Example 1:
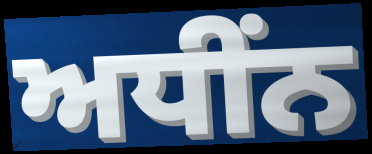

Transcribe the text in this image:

ਅਧੀਂਨ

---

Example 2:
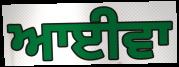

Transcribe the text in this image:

ਆਈਵਾ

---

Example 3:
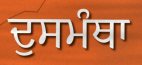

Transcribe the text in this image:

ਦੁਸਮੰਥਾ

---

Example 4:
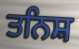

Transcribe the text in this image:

ਤਨਿਸ਼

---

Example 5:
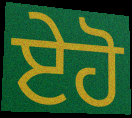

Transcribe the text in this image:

ਏਹੋ